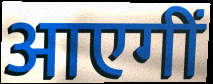
आएगीं